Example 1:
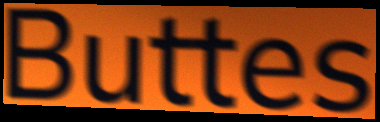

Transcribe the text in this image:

Buttes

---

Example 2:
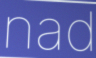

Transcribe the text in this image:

nad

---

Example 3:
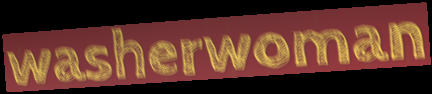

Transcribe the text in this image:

washerwoman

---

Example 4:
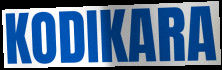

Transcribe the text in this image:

KODIKARA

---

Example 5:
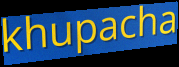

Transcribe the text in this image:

khupacha